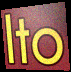
Ito